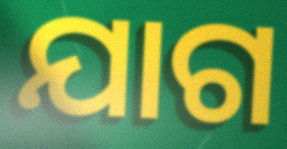
ଯାଗ